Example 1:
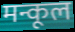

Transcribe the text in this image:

मन्कूल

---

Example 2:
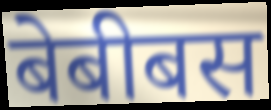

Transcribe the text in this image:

बेबीबस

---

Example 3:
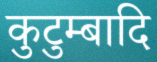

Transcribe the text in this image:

कुटुम्बादि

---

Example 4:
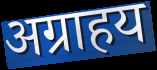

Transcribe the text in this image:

अग्राहय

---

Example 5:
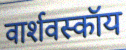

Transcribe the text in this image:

वार्शवस्कॉय